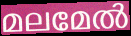
മലമേൽ